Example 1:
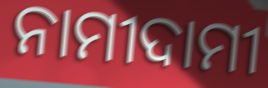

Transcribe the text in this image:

ନାମୀଦାମୀ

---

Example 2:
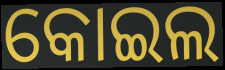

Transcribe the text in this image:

କୋଇଲ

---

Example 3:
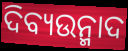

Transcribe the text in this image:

ଦିବ୍ୟଉନ୍ମାଦ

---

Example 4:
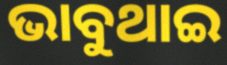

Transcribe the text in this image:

ଭାବୁଥାଇ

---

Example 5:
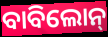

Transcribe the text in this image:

ବାବିଲୋନ୍